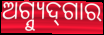
ଅଗ୍ନ୍ୟୁଦ୍‌ଗାର